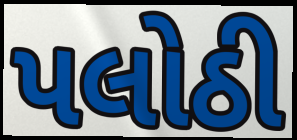
પલોઠી